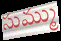
సుమ్ము